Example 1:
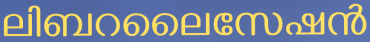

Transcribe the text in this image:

ലിബറലൈസേഷൻ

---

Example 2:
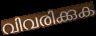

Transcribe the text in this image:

വിവരിക്കുക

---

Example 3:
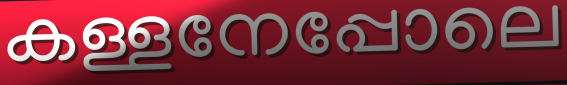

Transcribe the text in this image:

കള്ളനേപ്പോലെ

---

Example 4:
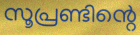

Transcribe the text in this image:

സൂപ്രണ്ടിന്റെ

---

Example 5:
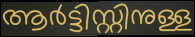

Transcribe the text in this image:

ആർട്ടിസ്റ്റിനുള്ള